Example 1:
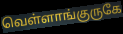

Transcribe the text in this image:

வெள்ளாங்குருகே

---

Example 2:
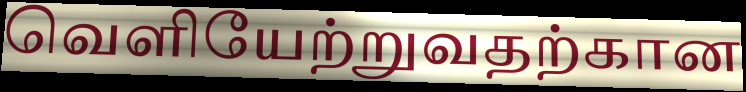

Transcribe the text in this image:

வெளியேற்றுவதற்கான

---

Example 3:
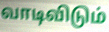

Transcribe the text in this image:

வாடிவிடும்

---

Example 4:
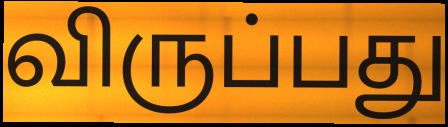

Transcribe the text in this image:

விருப்பது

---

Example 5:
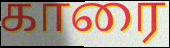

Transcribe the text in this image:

காரை